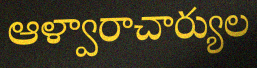
ఆళ్వారాచార్యుల